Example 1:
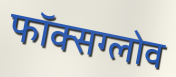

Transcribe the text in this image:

फॉक्सग्लोव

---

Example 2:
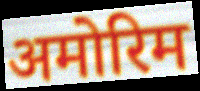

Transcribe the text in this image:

अमोरिम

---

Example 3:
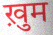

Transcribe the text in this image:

ख़ुम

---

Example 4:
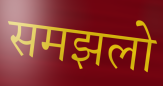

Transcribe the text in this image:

समझलो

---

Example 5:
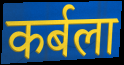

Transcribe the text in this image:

कर्बला